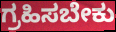
ಗ್ರಹಿಸಬೇಕು